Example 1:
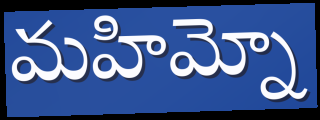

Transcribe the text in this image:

మహిమ్నో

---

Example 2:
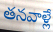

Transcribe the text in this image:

తనవాళ్లే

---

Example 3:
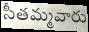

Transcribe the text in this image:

సీతమ్మవారు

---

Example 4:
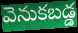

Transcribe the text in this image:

వెనుకబడ్డ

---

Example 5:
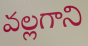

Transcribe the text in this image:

వల్లగాని